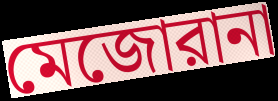
মেজোরানা